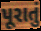
પૂરાતું